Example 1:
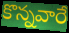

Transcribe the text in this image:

కొన్నవారే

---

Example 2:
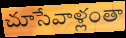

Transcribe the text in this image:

చూసేవాళ్లంతా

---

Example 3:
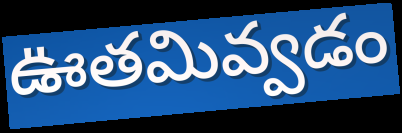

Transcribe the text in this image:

ఊతమివ్వడం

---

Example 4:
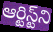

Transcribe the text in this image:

ఆర్టిస్ట్‌ని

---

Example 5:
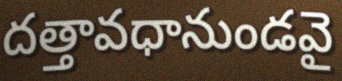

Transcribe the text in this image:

దత్తావధానుండవై